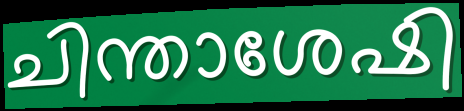
ചിന്താശേഷി